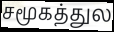
சமூகத்துல